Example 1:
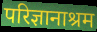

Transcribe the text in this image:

परिज्ञानाश्रम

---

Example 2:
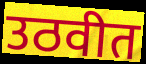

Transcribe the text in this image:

उठवीत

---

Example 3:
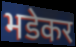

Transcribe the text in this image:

भडेकर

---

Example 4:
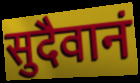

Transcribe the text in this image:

सुदैवानं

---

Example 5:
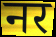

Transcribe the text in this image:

नर